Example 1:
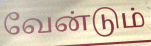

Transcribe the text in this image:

வேன்டும்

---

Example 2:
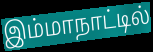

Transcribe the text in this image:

இம்மாநாட்டில்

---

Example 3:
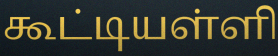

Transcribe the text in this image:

கூட்டியள்ளி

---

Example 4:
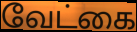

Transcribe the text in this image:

வேட்கை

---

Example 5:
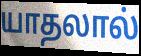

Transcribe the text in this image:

யாதலால்